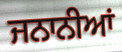
ਜਨਾਨੀਆਂ